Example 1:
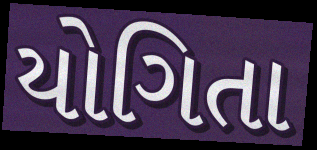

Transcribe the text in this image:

યોગિતા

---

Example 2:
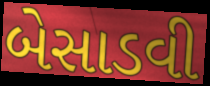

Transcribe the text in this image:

બેસાડવી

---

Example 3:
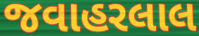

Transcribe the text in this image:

જવાહરલાલ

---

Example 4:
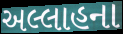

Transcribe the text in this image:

અલ્લાહના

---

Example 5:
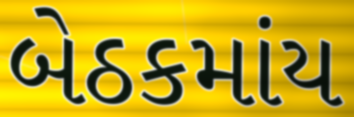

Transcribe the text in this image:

બેઠકમાંય